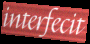
interfecit